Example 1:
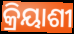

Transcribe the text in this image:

କ୍ରିୟାଶୀ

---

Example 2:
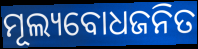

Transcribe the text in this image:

ମୂଲ୍ୟବୋଧଜନିତ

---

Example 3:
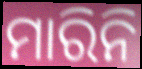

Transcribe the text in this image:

ମାରିନି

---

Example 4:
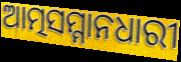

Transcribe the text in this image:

ଆତ୍ମସମ୍ମାନଧାରୀ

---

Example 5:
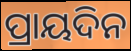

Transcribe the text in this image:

ପ୍ରାୟଦିନ